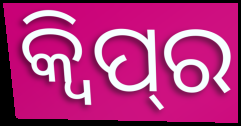
କ୍ଵିପ୍‌ର